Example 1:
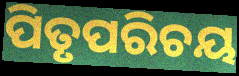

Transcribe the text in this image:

ପିତୃପରିଚୟ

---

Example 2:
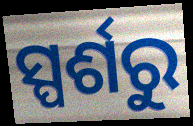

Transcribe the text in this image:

ସ୍ପର୍ଶରୁ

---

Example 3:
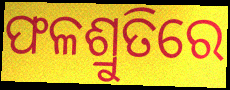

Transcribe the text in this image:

ଫଳଶ୍ରୁତିରେ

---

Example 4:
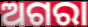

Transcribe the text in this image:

ଅଗରା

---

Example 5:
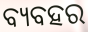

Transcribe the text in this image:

ବ୍ୟବହର